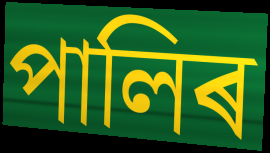
পালিৰ